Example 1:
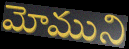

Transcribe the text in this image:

మోముని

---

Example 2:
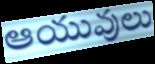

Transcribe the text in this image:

ఆయువులు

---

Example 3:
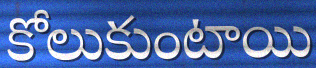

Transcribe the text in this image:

కోలుకుంటాయి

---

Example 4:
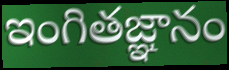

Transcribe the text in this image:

ఇంగితజ్ఞానం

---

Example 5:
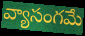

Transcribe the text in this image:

వ్యాసంగమే